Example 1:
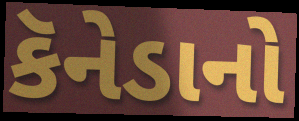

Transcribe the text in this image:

કૅનેડાનો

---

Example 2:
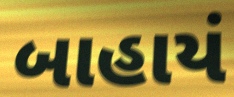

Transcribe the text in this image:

બાહાયં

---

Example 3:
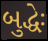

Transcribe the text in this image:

બુદ્ધેઃ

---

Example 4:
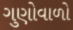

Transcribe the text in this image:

ગુણોવાળો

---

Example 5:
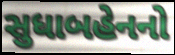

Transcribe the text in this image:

સુધાબહેનનો